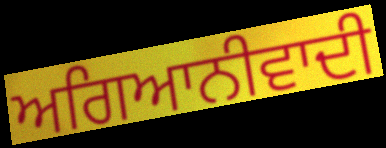
ਅਗਿਆਨੀਵਾਦੀ